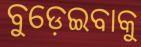
ବୁଡ଼େଇବାକୁ